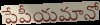
పేపీయమానో